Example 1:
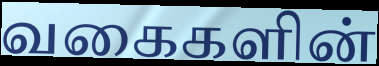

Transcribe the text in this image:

வகைகளின்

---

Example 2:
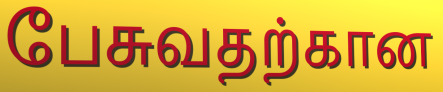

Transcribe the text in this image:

பேசுவதற்கான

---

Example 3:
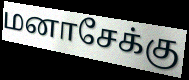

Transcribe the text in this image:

மனாசேக்கு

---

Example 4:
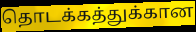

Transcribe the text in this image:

தொடக்கத்துக்கான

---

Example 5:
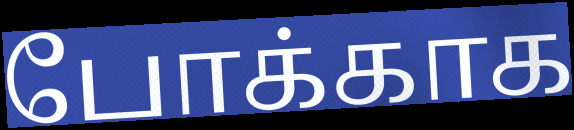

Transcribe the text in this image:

போக்காக